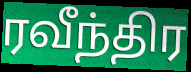
ரவீந்திர